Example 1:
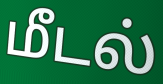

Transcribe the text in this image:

மீடல்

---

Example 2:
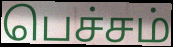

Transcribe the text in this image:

பெச்சம்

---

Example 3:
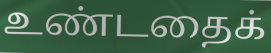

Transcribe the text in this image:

உண்டதைக்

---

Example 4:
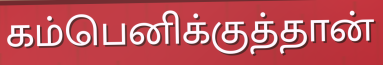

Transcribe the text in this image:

கம்பெனிக்குத்தான்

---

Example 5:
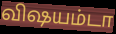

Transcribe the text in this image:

விஷயம்டா